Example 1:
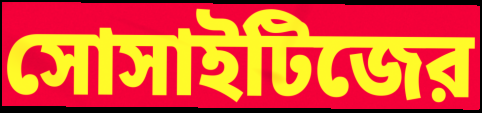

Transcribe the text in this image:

সোসাইটিজের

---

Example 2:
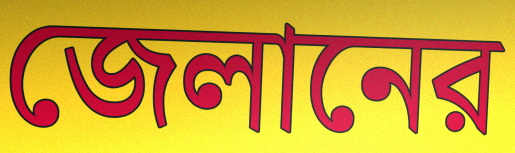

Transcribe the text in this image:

জেলানের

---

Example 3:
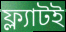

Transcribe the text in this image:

ফ্ল্যাটই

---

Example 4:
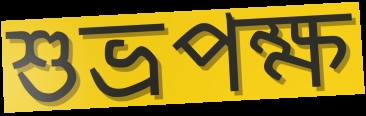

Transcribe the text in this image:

শুভ্রপক্ষ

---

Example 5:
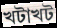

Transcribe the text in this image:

খটাখট